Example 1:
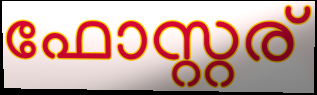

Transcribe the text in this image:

ഫോസ്റ്റര്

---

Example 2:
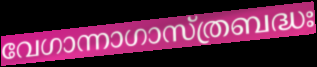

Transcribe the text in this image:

വേഗാന്നാഗാസ്ത്രബദ്ധഃ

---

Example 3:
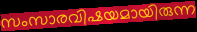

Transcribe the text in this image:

സംസാരവിഷയമായിരുന്ന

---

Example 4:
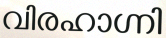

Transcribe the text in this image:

വിരഹാഗ്നി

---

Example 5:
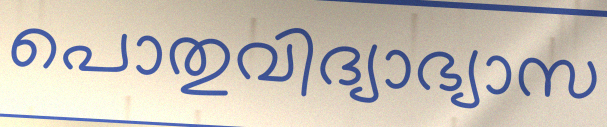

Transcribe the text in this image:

പൊതുവിദ്യാഭ്യാസ